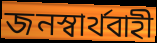
জনস্বার্থবাহী